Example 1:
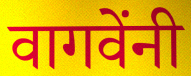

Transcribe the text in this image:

वागवेंनी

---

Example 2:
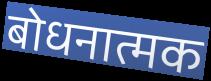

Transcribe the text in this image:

बोधनात्मक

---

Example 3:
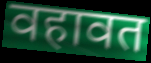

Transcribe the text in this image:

वहावत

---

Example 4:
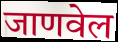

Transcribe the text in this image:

जाणवेल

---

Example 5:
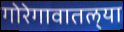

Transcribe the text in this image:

गोरेगावातल्या